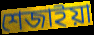
শেজাইয়া